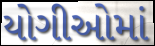
યોગીઓમાં